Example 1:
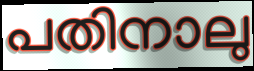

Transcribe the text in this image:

പതിനാലു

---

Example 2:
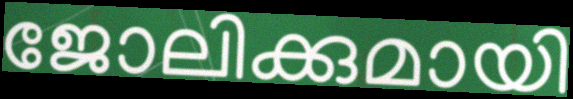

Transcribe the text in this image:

ജോലിക്കുമായി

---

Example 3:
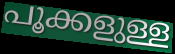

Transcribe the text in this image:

പൂക്കളുള്ള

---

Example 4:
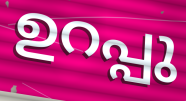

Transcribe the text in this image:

ഉറപ്പു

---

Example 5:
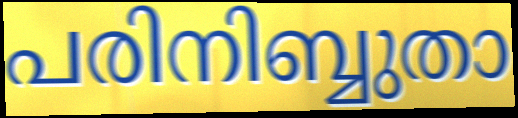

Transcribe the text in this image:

പരിനിബ്ബുതാ